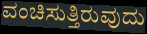
ವಂಚಿಸುತ್ತಿರುವುದು